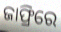
ଜାଫ୍ରିରେ